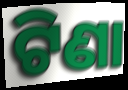
ଟିଣା